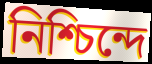
নিশ্চিন্দে